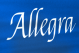
Allegra